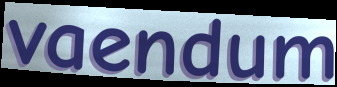
vaendum